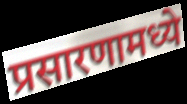
प्रसारणामध्ये